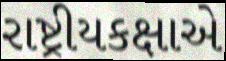
રાષ્ટ્રીયકક્ષાએ